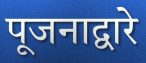
पूजनाद्वारे